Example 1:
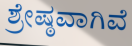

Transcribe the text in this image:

ಶ್ರೇಷ್ಠವಾಗಿವೆ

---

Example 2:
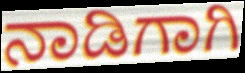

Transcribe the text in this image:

ನಾಡಿಗಾಗಿ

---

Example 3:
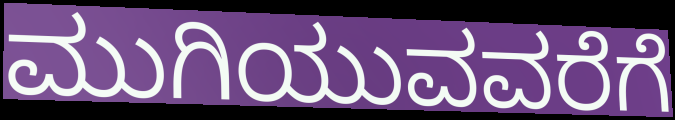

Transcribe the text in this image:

ಮುಗಿಯುವವರೆಗೆ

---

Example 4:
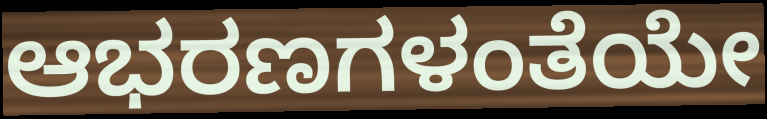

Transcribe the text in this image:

ಆಭರಣಗಳಂತೆಯೇ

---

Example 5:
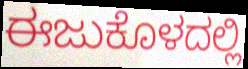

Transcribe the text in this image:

ಈಜುಕೊಳದಲ್ಲಿ